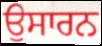
ਉਸਾਰਨ